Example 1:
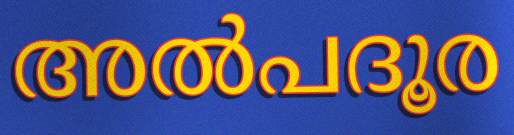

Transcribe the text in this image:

അൽപദൂര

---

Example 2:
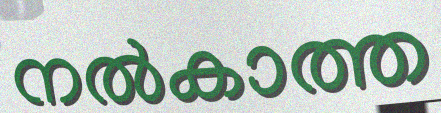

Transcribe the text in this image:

നൽകാത്ത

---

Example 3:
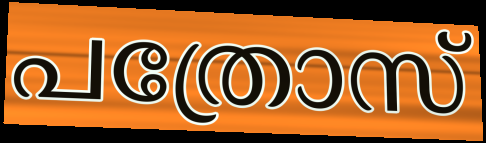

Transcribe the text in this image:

പത്രോസ്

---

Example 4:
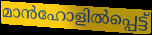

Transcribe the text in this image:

മാൻഹോളിൽപ്പെട്ട്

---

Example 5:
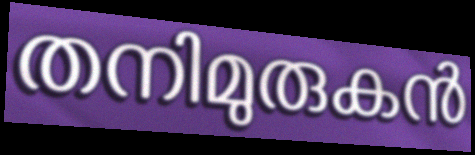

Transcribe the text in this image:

തനിമുരുകൻ